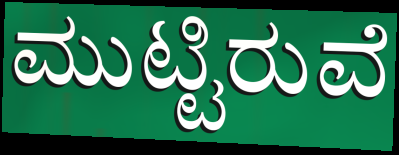
ಮುಟ್ಟಿರುವೆ